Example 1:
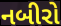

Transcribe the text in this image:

નબીરો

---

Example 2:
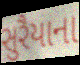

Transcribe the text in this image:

સુરૈયાના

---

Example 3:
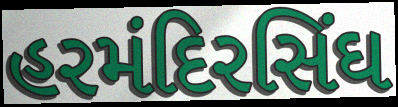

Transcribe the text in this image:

હરમંદિરસિંઘ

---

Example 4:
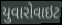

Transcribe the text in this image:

યુવારોવાઇટ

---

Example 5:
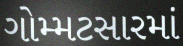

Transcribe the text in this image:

ગોમ્મટસારમાં